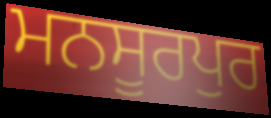
ਮਨਸੂਰਪੁਰ